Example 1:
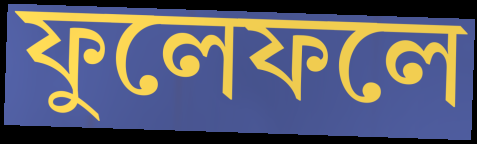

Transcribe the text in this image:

ফুলেফলে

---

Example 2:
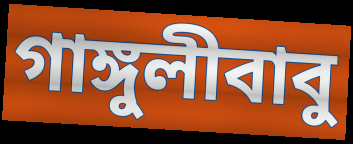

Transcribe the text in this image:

গাঙ্গুলীবাবু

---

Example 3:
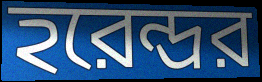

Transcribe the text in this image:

হরেন্দ্রর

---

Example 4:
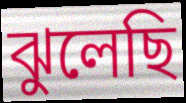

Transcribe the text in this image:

ঝুলেছি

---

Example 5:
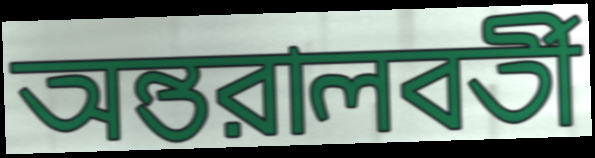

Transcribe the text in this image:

অন্তরালবর্তী